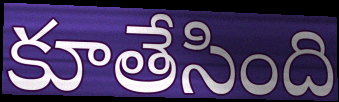
కూతేసింది